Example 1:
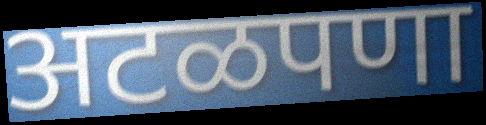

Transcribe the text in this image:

अटळपणा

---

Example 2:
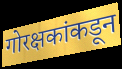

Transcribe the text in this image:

गोरक्षकांकडून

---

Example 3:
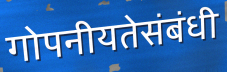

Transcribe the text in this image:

गोपनीयतेसंबंधी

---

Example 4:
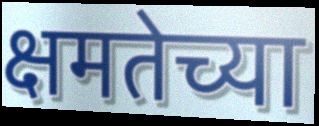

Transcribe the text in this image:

क्षमतेच्या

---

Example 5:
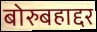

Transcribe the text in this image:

बोरुबहाद्दर